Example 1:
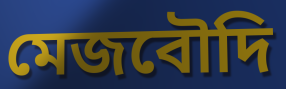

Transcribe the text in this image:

মেজবৌদি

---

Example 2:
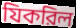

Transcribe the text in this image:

যিকরিল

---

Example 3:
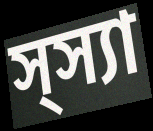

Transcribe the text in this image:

স্স্যা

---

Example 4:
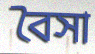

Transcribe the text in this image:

বৈসা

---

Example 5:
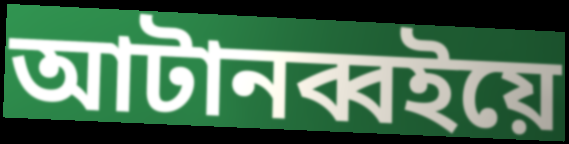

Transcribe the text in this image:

আটানব্বইয়ে